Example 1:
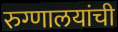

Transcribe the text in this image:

रुग्णालयांची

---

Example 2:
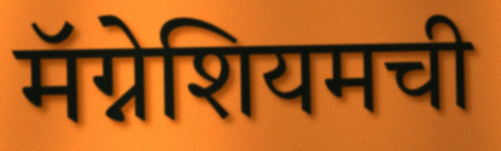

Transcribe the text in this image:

मॅग्नेशियमची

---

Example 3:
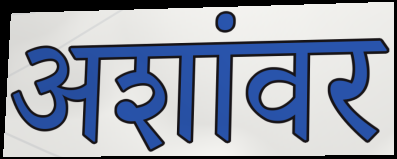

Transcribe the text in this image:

अशांवर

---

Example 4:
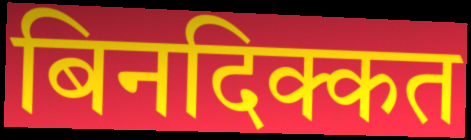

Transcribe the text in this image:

बिनदिक्कत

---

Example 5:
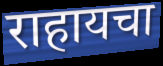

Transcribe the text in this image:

राहायचा